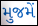
મુજમેં